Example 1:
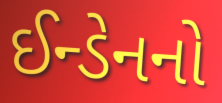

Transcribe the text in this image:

ઈન્ડેનનો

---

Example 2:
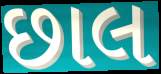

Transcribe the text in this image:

છાલ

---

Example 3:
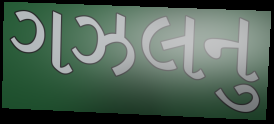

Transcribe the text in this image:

ગઝલનુ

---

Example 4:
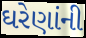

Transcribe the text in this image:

ઘરેણાંની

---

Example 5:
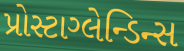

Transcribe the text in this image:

પ્રોસ્ટાગ્લેન્ડિન્સ